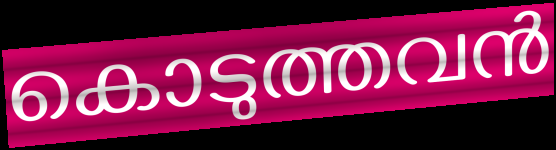
കൊടുത്തവൻ